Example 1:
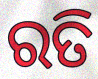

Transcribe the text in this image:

ରତି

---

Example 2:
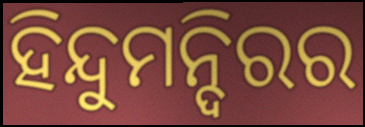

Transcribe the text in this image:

ହିନ୍ଦୁମନ୍ଦିରର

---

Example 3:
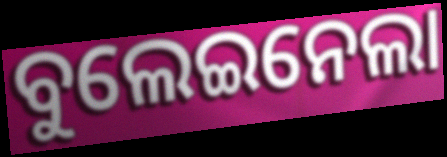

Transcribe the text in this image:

ବୁଲେଇନେଲା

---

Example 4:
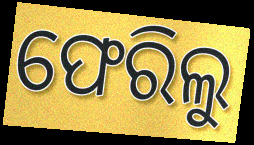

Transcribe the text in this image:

ଫେରିଲୁ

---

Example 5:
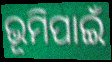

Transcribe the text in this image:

ଭୂମିପାଇଁ